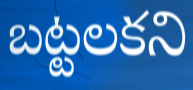
బట్టలకని